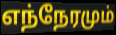
எந்நேரமும்